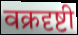
वक्रदृष्टी